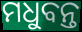
ମଧୁବନ୍ତ